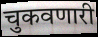
चुकवणारी